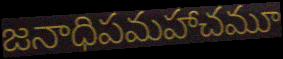
జనాధిపమహాచమూ